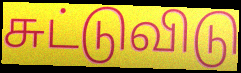
சுட்டுவிடு